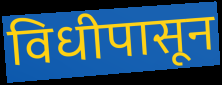
विधीपासून